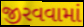
જીરવવામાં